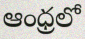
ఆంధ్రలో